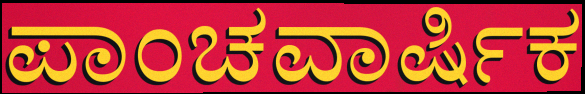
ಪಾಂಚವಾರ್ಷಿಕ